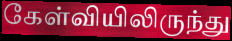
கேள்வியிலிருந்து